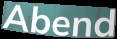
Abend